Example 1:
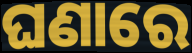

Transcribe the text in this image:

ଘଣାରେ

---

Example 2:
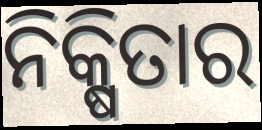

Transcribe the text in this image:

ନିକ୍ଷିତାର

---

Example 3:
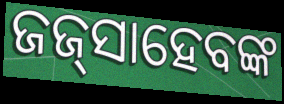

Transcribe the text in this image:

ଜଜ୍‌ସାହେବଙ୍କ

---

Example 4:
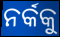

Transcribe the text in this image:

ନର୍କକୁ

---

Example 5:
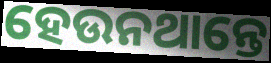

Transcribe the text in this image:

ହେଉନଥାନ୍ତେ